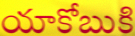
యాకోబుకి